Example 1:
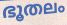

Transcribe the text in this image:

ഭൂതലം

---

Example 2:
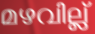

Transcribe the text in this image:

മഴവില്ല്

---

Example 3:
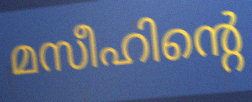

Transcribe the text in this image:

മസീഹിന്റെ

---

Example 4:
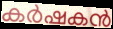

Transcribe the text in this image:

കർഷകൻ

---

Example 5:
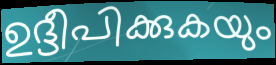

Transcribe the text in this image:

ഉദ്ദീപിക്കുകയും